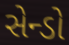
સેન્ડો